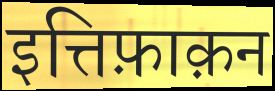
इत्तिफ़ाक़न